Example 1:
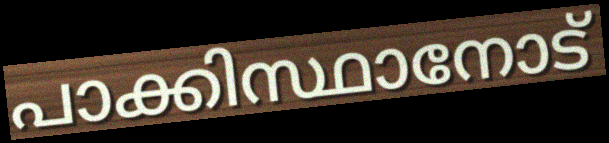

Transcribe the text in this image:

പാക്കിസ്ഥാനോട്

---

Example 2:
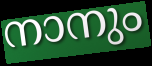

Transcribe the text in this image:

നാനും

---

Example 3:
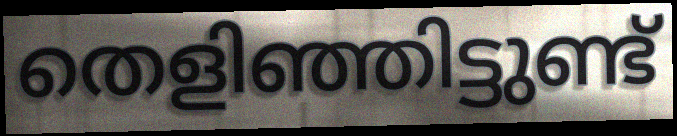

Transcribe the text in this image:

തെളിഞ്ഞിട്ടുണ്ട്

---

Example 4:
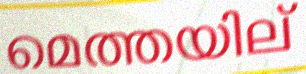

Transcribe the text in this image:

മെത്തയില്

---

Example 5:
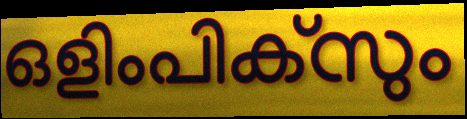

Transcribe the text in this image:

ഒളിംപിക്സും